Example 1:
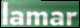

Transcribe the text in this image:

lamar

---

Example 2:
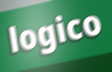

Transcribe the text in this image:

logico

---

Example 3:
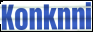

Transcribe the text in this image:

Konknni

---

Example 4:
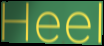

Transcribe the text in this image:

Heel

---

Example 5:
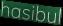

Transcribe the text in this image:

hasibul